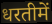
धरतीमें